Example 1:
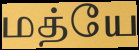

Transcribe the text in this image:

மத்யே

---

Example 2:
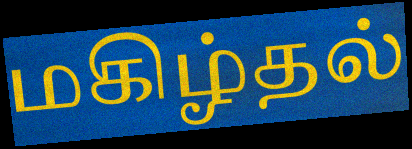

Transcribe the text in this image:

மகிழ்தல்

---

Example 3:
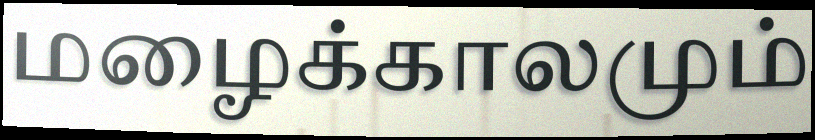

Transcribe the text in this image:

மழைக்காலமும்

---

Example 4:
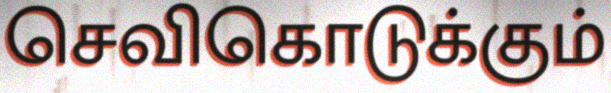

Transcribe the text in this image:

செவிகொடுக்கும்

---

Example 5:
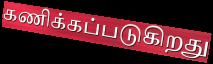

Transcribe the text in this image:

கணிக்கப்படுகிறது